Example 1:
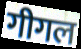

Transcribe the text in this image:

गीगल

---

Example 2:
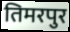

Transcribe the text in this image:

तिमरपुर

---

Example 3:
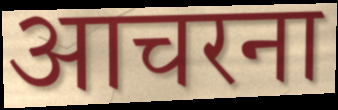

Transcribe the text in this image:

आचरना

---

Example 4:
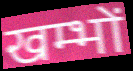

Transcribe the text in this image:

खम्भों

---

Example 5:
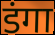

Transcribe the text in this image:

डंगा